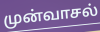
முன்வாசல்